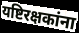
यष्टिरक्षकांना